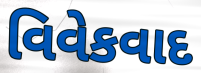
વિવેકવાદ